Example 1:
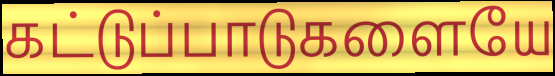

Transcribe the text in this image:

கட்டுப்பாடுகளையே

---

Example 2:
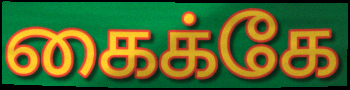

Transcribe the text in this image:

கைக்கே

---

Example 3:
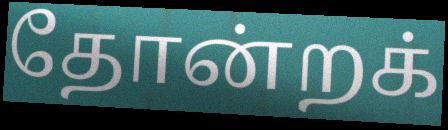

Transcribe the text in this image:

தோன்றக்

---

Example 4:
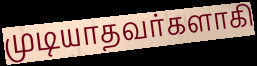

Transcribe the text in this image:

முடியாதவர்களாகி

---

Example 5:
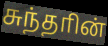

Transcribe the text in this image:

சுந்தரின்